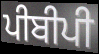
ਪੀਬੀਪੀ